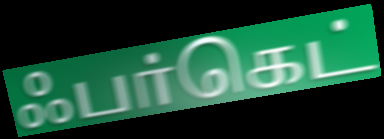
ஃபர்கெட்